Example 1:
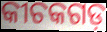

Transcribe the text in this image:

କୀଚକଗଡ଼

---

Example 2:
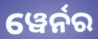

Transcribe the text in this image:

ୱେର୍ନର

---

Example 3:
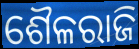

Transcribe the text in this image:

ଶୈଳରାଜି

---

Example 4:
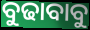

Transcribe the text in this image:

ବୁଢାବାବୁ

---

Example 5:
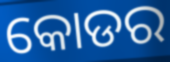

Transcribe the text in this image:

କୋଡର